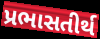
પ્રભાસતીર્થ